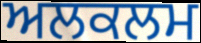
ਅਲਕਲਮ